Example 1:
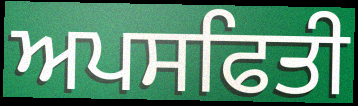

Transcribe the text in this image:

ਅਪਸਫਿਤੀ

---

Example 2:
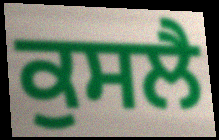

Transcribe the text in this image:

ਕੁਸਲੈ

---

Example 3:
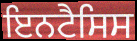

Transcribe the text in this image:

ਇਨਟੈਸਿਸ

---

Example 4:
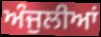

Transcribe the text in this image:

ਅੰਜੁਲੀਆਂ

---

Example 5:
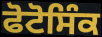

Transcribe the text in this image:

ਫੋਟੋਸਿੰਕ